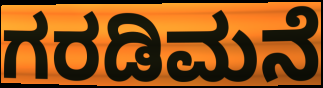
ಗರಡಿಮನೆ